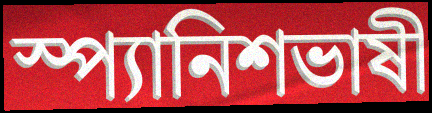
স্প্যানিশভাষী